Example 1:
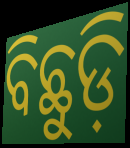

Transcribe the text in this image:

ବିଛୁଡ଼ି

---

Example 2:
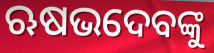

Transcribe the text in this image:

ଋଷଭଦେବଙ୍କୁ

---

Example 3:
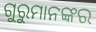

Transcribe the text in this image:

ଗୁରୁମାନଙ୍କର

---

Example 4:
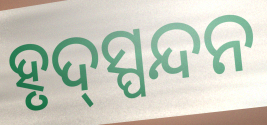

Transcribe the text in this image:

ହୃଦ୍‍ସ୍ପନ୍ଦନ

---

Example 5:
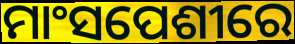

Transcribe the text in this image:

ମାଂସପେଶୀରେ